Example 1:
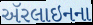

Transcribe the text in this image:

ઍરલાઇનના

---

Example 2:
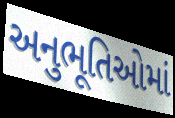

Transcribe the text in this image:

અનુભૂતિઓમાં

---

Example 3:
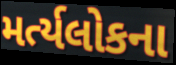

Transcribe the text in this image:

મર્ત્યલોકના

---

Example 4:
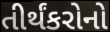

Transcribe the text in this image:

તીર્થંકરોનો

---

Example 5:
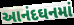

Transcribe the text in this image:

આનંદઘનમાં